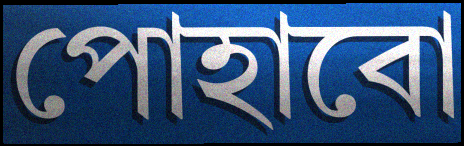
পোহাবো